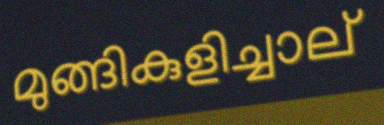
മുങ്ങികുളിച്ചാല്